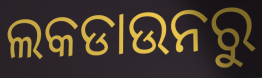
ଲକଡାଉନରୁ